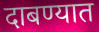
दाबण्यात